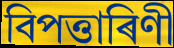
বিপত্তাৰিণী